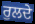
ਰੁਲਦੇ